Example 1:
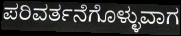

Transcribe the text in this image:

ಪರಿವರ್ತನೆಗೊಳ್ಳುವಾಗ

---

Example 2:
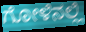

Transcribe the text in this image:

ಗೋಳಿನಲ್ಲಿ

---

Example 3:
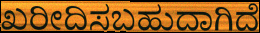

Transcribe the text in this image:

ಖರೀದಿಸಬಹುದಾಗಿದೆ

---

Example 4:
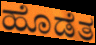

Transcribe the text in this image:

ಹೊಡೆತ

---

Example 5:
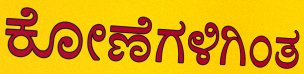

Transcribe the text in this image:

ಕೋಣೆಗಳಿಗಿಂತ